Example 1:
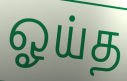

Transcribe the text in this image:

ஓய்த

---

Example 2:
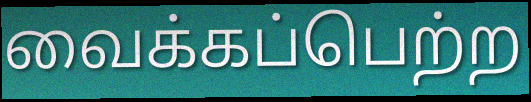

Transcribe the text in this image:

வைக்கப்பெற்ற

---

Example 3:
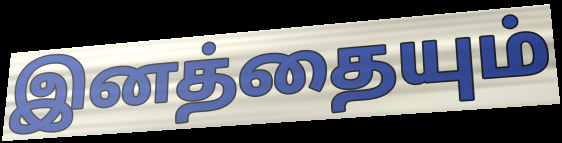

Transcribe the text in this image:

இனத்தையும்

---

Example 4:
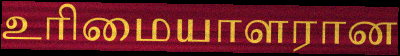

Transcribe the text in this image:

உரிமையாளரான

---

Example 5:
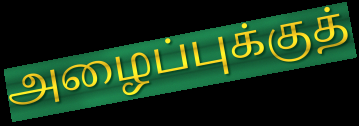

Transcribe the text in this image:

அழைப்புக்குத்